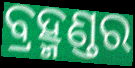
ବ୍ରହ୍ମଣ୍ଡର